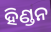
ହିଣ୍ଡନ